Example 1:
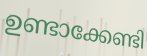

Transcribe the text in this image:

ഉണ്ടാക്കേണ്ടി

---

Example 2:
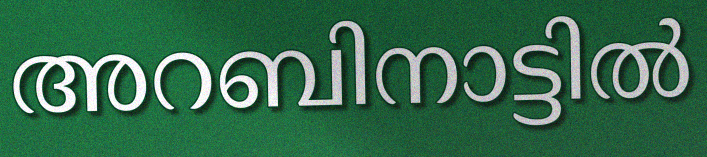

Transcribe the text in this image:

അറബിനാട്ടിൽ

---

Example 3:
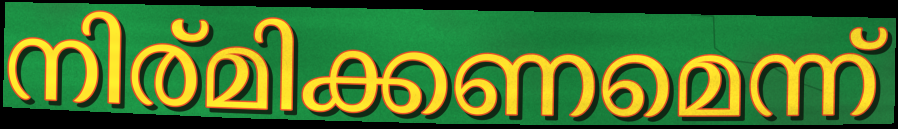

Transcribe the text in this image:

നിര്മിക്കണമെന്ന്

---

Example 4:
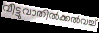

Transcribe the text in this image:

വീട്ടുവാതിൽക്കൽവച്ച്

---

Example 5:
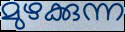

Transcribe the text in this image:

മുഴക്കുന്ന